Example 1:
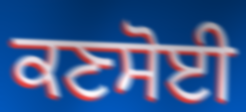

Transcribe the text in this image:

ਕਣਸੋਈ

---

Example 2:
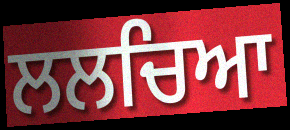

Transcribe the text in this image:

ਲਲਚਿਆ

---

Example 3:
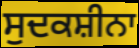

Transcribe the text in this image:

ਸੁਦਕਸ਼ੀਨਾ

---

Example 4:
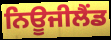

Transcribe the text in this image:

ਨਿਊਜੀਲੈਂਡ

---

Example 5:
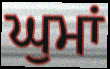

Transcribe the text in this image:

ਘੁਮਾਂ